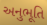
અનુભૂતિ